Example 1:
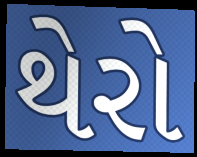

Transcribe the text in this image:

થેરો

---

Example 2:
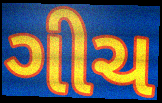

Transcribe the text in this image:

ગીચ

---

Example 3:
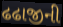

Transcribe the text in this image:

ઢઢાજીની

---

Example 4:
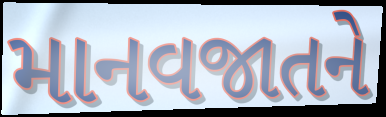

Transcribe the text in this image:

માનવજાતને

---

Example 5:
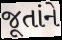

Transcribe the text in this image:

જૂતાંને